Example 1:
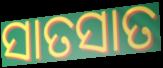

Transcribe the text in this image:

ସାତସାତ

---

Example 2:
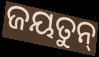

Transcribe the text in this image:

ଜୟତୁନ୍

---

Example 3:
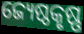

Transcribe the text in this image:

ଜ୍ୟେଷ୍ଠକୃଷ୍ଣ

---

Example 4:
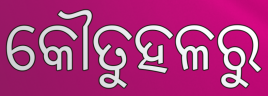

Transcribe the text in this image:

କୌତୁହଳରୁ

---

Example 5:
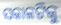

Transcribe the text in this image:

ସକାଳଟିକୁ